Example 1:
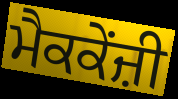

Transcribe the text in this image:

ਮੈਕਕੇਂਜ਼ੀ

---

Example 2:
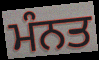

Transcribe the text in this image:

ਮੰਨਤ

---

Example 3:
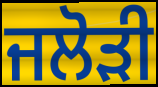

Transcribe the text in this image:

ਜਲੋੜੀ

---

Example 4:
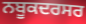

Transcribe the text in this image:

ਨਬੂਕਦਰਸਰ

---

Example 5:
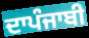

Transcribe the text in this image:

ਦਾਪੰਜਾਬੀ